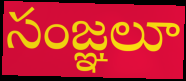
సంజ్ఞలూ